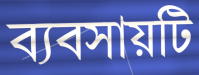
ব্যবসায়টি